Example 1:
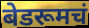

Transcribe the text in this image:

बेडरूमचं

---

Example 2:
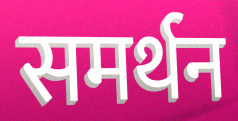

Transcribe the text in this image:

समर्थन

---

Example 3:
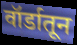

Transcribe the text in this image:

वॉर्डातून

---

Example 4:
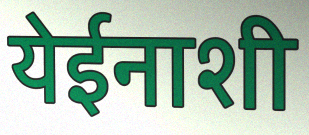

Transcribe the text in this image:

येईनाशी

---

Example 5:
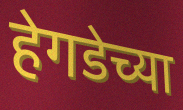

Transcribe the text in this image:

हेगडेच्या